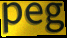
peg